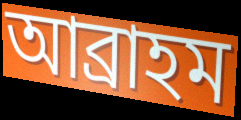
আব্ৰাহম